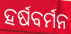
ହର୍ଷବର୍ମନ